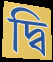
দ্বি